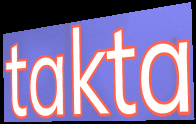
takta